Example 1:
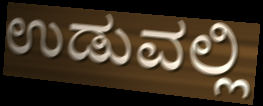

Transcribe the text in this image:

ಉಡುವಲ್ಲಿ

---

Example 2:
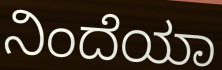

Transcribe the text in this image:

ನಿಂದೆಯಾ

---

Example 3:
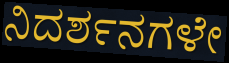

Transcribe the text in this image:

ನಿದರ್ಶನಗಳೇ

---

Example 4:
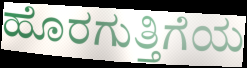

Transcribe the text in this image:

ಹೊರಗುತ್ತಿಗೆಯ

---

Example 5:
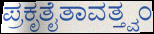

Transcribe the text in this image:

ಪ್ರಕೃತೈತಾವತ್ತ್ವಂ